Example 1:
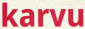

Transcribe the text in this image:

karvu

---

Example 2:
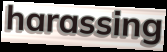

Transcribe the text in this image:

harassing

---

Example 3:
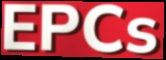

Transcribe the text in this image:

EPCs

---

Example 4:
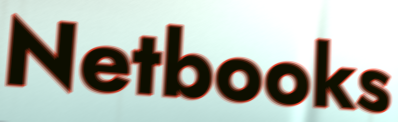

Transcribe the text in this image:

Netbooks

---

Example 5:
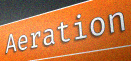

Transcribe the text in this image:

Aeration